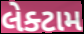
લેક્ટામ